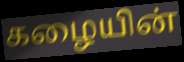
கழையின்